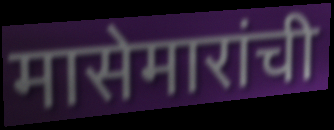
मासेमारांची